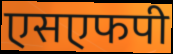
एसएफपी